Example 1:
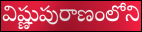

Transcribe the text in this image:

విష్ణుపురాణంలోని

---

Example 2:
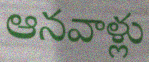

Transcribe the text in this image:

ఆనవాళ్లు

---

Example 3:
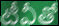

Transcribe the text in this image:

టీవీతో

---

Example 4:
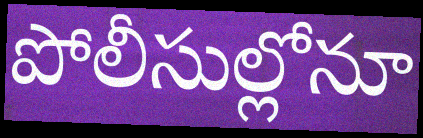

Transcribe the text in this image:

పోలీసుల్లోనూ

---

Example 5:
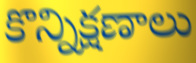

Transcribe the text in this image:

కొన్నిక్షణాలు